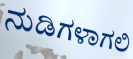
ನುಡಿಗಳಾಗಲಿ